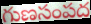
గుణసంపద